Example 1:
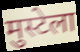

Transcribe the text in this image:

मुस्टेला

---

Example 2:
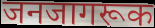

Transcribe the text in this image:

जनजागरूक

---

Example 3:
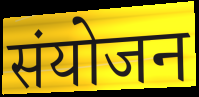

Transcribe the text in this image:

संयोजन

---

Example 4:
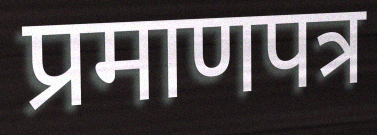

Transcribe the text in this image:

प्रमाणपत्र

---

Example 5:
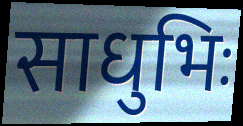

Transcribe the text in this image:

साधुभिः